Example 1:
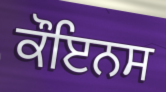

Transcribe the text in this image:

ਕੌਇਨਸ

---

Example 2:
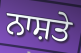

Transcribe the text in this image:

ਨਾਸ਼ਤੇ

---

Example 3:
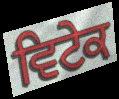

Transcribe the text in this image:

ਵਿਟੇਕ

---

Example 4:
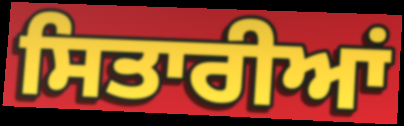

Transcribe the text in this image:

ਸਿਤਾਰੀਆਂ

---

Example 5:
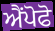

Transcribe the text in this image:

ਐਂਪੋਫੋ